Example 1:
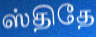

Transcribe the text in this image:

ஸ்திதே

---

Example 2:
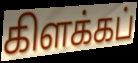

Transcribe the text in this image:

கிளக்கப்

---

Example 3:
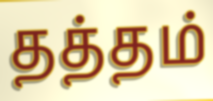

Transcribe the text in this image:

தத்தம்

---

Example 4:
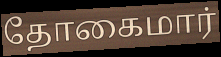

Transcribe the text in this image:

தோகைமார்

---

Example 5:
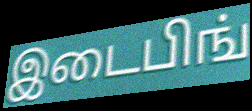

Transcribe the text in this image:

இடைபிங்